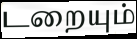
டறையும்